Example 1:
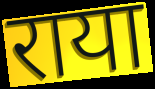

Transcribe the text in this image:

राया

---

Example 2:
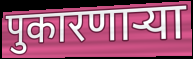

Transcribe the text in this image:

पुकारणार्‍या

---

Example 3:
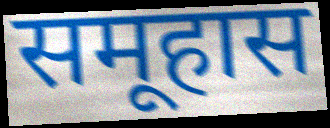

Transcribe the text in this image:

समूहास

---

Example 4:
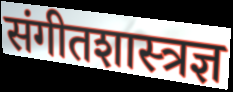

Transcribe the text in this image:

संगीतशास्त्रज्ञ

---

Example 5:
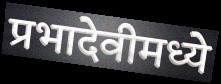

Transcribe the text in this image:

प्रभादेवीमध्ये